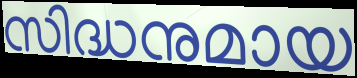
സിദ്ധനുമായ